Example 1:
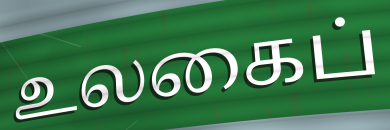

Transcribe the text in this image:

உலகைப்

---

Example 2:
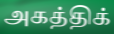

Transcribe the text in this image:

அகத்திக்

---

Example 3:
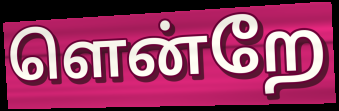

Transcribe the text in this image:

ளென்றே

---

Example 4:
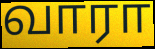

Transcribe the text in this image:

வாரா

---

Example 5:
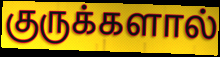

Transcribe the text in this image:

குருக்களால்